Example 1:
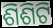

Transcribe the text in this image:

ଶିଶିଟି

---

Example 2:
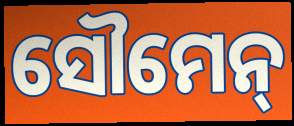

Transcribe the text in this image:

ସୌମେନ୍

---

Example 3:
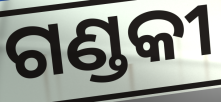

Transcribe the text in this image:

ଗଣ୍ଡକୀ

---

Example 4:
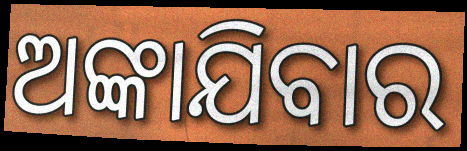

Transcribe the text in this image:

ଅଙ୍କାଯିବାର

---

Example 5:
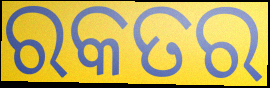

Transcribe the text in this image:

ରକତର